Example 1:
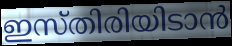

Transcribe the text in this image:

ഇസ്തിരിയിടാൻ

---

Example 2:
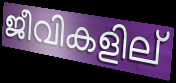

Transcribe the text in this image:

ജീവികളില്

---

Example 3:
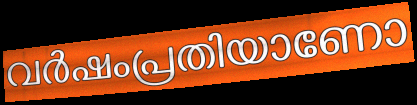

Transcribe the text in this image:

വർഷംപ്രതിയാണോ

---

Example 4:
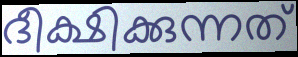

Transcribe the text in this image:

ദീക്ഷിക്കുന്നത്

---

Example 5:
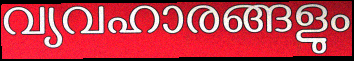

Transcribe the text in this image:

വ്യവഹാരങ്ങളും